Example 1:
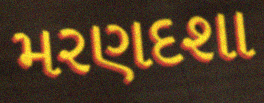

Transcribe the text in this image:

મરણદશા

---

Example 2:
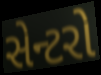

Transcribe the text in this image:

સેન્ટરો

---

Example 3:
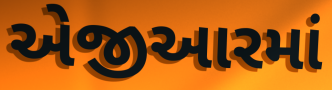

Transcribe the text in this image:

એજીઆરમાં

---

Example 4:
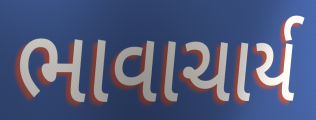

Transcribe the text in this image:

ભાવાચાર્ય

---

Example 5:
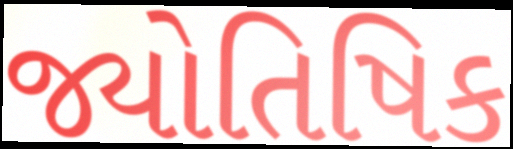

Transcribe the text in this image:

જ્યોતિષિક